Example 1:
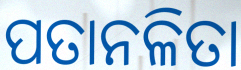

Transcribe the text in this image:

ପତାନଳିତା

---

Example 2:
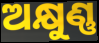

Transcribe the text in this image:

ଅକ୍ଷୁଣ୍ଣ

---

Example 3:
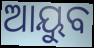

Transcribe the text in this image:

ଆୟୁବ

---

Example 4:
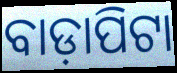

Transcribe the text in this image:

ବାଡ଼ାପିଟା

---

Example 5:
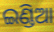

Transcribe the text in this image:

ଇଣ୍ଡିଆ